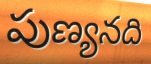
పుణ్యనది